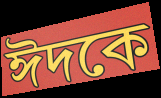
ঈদকে